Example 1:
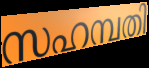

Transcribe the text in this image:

സഹമ്പതി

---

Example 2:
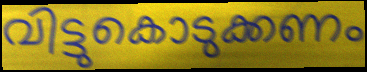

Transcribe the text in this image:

വിട്ടുകൊടുക്കണം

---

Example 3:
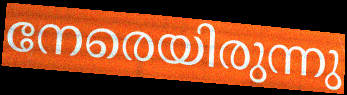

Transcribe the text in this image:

നേരെയിരുന്നു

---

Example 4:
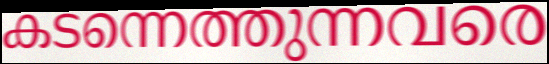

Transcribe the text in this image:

കടന്നെത്തുന്നവരെ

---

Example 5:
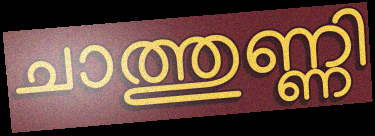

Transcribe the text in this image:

ചാത്തുണ്ണി